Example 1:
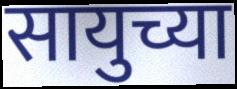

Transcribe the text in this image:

सायुच्या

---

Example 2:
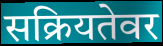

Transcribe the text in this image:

सक्रियतेवर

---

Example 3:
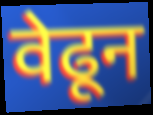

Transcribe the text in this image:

वेढून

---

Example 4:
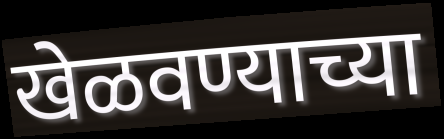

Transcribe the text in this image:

खेळवण्याच्या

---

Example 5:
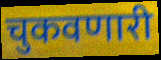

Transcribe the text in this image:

चुकवणारी